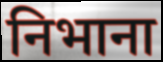
निभाना